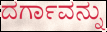
ದರ್ಗಾವನ್ನು